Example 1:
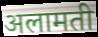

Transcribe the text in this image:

अलामती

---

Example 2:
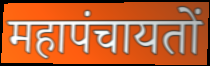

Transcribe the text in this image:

महापंचायतों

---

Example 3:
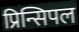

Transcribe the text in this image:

प्रिन्सिपल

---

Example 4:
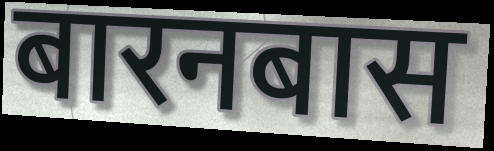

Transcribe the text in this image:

बारनबास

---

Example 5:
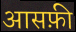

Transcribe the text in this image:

आसफ़ी